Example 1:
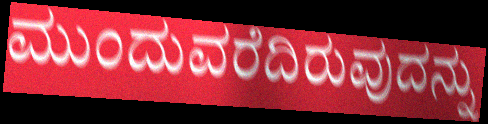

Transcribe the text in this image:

ಮುಂದುವರೆದಿರುವುದನ್ನು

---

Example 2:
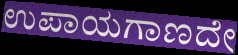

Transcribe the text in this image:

ಉಪಾಯಗಾಣದೇ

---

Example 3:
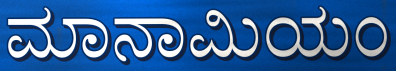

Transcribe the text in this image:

ಮಾನಾಮಿಯಂ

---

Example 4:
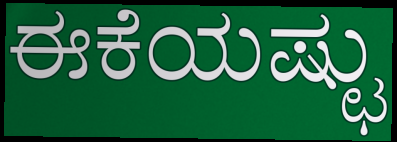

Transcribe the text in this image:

ಈಕೆಯಷ್ಟು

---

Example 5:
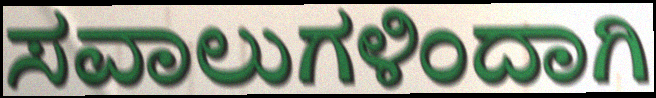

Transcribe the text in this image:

ಸವಾಲುಗಳಿಂದಾಗಿ